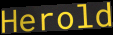
Herold